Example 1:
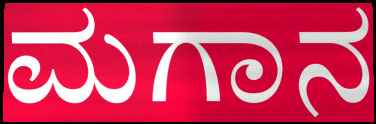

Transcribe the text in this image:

ಮಗಾನ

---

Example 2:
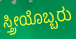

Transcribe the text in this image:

ಸ್ತ್ರೀಯೊಬ್ಬರು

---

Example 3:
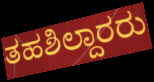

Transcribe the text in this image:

ತಹಶಿಲ್ದಾರರು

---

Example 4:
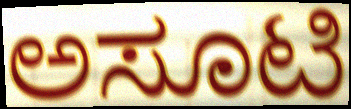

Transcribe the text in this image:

ಅಸೂಟಿ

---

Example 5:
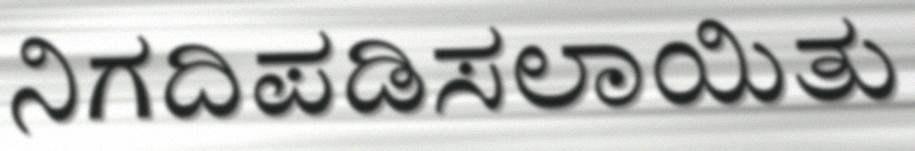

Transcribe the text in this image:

ನಿಗದಿಪಡಿಸಲಾಯಿತು